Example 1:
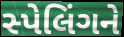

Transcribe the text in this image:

સ્પેલિંગને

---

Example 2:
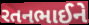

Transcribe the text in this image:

રતનભાઈને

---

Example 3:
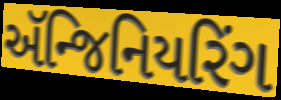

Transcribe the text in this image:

ઍન્જિનિયરિંગ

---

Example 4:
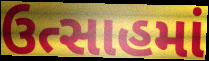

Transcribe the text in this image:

ઉત્સાહમાં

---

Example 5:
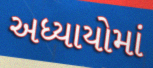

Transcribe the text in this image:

અધ્યાયોમાં